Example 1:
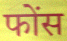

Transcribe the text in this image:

फोंस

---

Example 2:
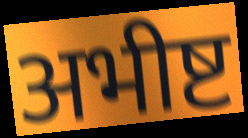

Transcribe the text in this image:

अभीष्ट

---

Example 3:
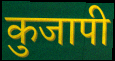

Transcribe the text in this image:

कुजापी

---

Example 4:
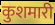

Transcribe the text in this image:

कुशमारी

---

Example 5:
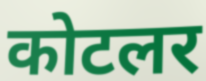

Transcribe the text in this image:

कोटलर